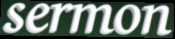
sermon